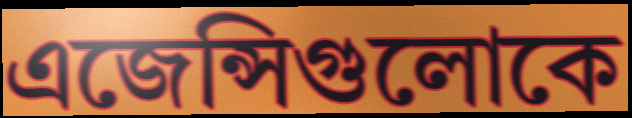
এজেন্সিগুলোকে